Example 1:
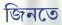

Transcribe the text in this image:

জিনতে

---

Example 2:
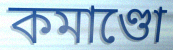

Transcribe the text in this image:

কমাণ্ডো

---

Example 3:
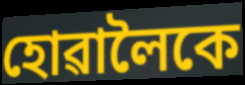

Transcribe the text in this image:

হোৱালৈকে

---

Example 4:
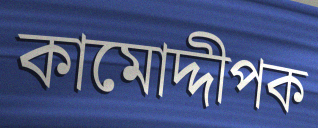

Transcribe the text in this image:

কামোদ্দীপক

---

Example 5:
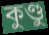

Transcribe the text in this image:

কুণ্ডু